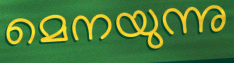
മെനയുന്നു